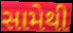
સામેથી